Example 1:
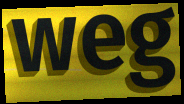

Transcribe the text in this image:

weg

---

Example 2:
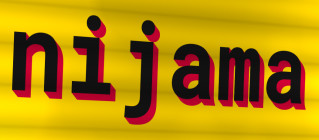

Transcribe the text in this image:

nijama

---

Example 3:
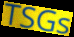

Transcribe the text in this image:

TSGs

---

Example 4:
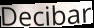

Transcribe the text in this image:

Decibar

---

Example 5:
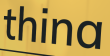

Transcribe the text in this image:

thina